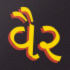
વૈર